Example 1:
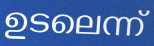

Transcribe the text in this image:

ഉടലെന്ന്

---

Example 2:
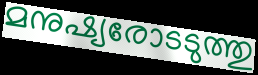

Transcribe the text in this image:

മനുഷ്യരോടടുത്തു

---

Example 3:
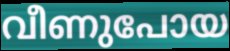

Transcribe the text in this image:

വീണുപോയ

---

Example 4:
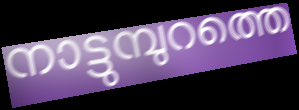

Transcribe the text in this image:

നാട്ടുമ്പുറത്തെ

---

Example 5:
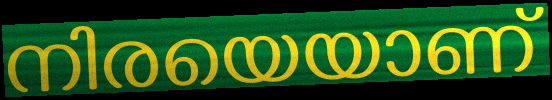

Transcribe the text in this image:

നിരയെയാണ്